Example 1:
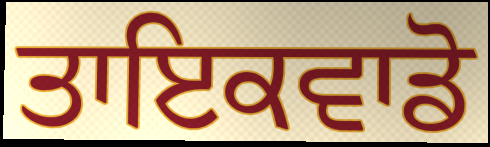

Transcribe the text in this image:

ਤਾਇਕਵਾਡੋ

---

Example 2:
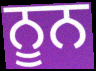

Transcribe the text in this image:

ਨੂਨ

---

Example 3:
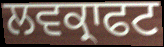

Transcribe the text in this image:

ਲਵਕ੍ਰਾਫਟ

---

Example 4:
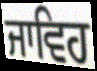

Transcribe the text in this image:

ਜਾਵਿਹ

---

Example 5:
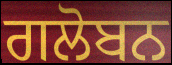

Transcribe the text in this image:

ਗਲੋਬਨ